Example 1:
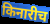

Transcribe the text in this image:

किनारीच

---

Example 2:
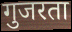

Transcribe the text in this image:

गुजरता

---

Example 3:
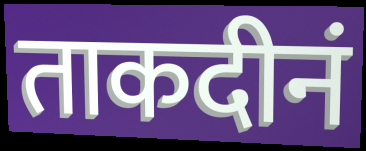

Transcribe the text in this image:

ताकदीनं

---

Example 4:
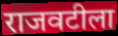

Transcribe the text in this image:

राजवटीला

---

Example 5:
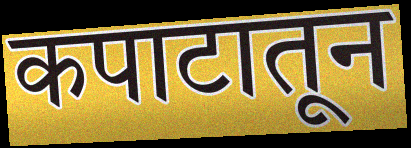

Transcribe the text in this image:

कपाटातून